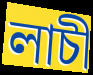
লাচী